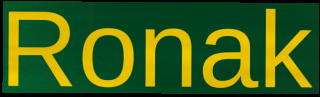
Ronak